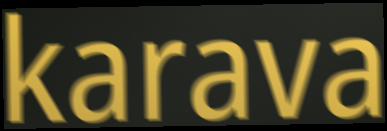
karava